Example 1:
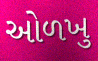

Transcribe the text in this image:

ઓળખુ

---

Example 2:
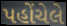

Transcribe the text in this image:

પહોંચેલે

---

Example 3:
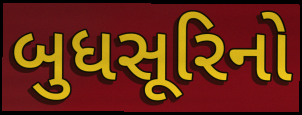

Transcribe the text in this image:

બુધસૂરિનો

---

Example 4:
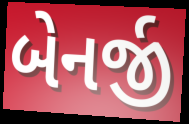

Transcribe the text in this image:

બેનર્જી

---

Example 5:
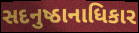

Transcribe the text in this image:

સદનુષ્ઠાનાધિકાર